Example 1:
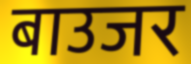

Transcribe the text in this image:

बाउजर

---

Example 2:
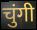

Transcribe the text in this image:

चुंगी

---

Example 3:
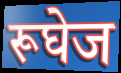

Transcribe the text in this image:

रूघेज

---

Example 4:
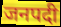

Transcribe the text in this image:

जनपदी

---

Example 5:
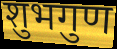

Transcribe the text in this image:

शुभगुण